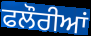
ਫਲੌਰੀਆਂ